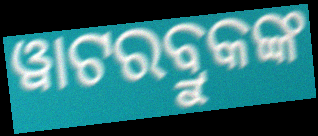
ୱାଟରବ୍ରୁକଙ୍କ